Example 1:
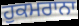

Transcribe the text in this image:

ਹੁਕਮਰਾਨਾ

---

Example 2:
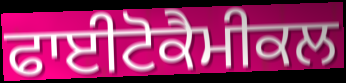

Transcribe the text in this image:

ਫਾਈਟੋਕੈਮੀਕਲ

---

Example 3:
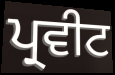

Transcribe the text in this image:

ਪ੍ਰਵੀਟ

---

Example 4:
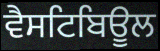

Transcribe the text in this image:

ਵੈਸਟਿਬਿਊਲ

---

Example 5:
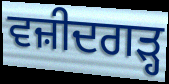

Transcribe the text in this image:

ਵਜ਼ੀਦਗੜ੍ਹ